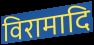
विरामादि